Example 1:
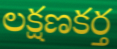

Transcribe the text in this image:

లక్షణకర్త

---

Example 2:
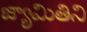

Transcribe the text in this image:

జ్యామితిని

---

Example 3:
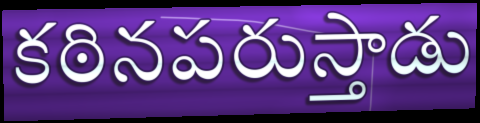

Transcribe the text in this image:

కఠినపరుస్తాడు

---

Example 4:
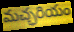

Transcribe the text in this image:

మచ్ఛరియం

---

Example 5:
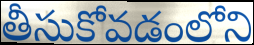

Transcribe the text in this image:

తీసుకోవడంలోని